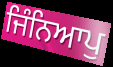
ਜਿੰਨਿਆਪੁ